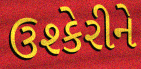
ઉશ્કેરીને